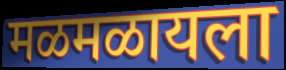
मळमळायला